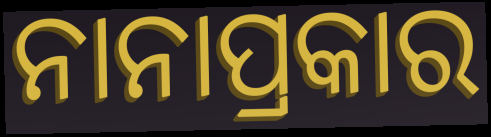
ନାନାପ୍ରକାର